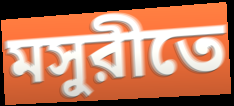
মসুরীতে